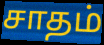
சாதம்